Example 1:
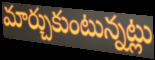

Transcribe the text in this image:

మార్చుకుంటున్నట్లు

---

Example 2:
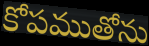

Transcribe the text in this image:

కోపముతోను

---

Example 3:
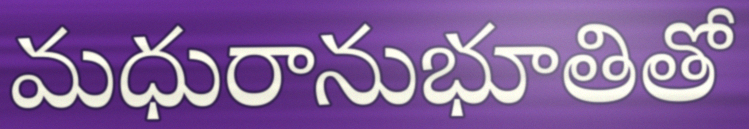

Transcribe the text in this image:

మధురానుభూతితో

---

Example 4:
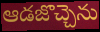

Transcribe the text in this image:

ఆడజొచ్చెను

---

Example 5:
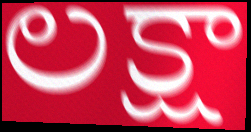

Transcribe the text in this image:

లక్షా